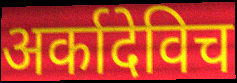
अर्कादेविच